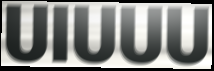
UIUUU